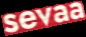
sevaa